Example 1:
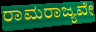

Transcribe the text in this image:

ರಾಮರಾಜ್ಯವೇ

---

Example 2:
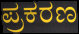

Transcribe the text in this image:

ಪ್ರಕರಣ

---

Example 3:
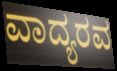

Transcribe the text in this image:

ವಾದ್ಯರವ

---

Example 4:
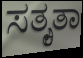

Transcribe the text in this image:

ಸತ್ಕೃತಾ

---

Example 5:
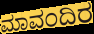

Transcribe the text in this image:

ಮಾವಂದಿರ